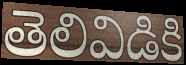
తెలివిడికి